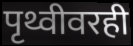
पृथ्वीवरही